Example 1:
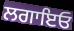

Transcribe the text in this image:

ਲਗਾਇਓ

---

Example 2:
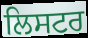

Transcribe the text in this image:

ਲਿਸਟਰ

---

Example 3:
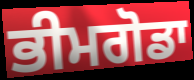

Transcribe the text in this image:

ਭੀਮਗੋਡਾ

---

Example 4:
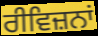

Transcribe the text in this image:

ਰੀਵਿਜ਼ਨਾਂ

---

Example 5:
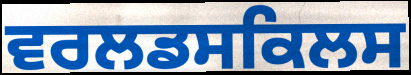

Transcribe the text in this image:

ਵਰਲਡਸਕਿਲਸ